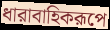
ধারাবাহিকরূপে